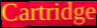
Cartridge